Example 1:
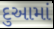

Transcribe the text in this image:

દુઆમાં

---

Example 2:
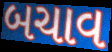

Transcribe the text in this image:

બચાવ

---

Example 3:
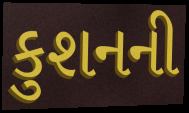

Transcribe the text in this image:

કુશનની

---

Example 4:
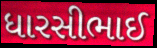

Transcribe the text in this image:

ધારસીભાઈ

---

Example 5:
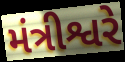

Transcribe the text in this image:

મંત્રીશ્વરે